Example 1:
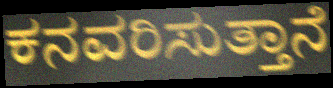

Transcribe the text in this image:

ಕನವರಿಸುತ್ತಾನೆ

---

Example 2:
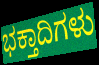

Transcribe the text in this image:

ಭಕ್ತಾದಿಗಳು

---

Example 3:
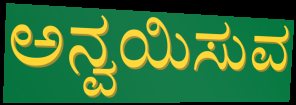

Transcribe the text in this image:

ಅನ್ವಯಿಸುವ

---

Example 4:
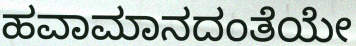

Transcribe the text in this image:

ಹವಾಮಾನದಂತೆಯೇ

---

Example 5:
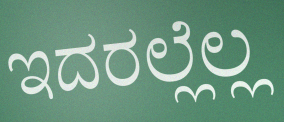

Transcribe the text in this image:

ಇದರಲ್ಲೆಲ್ಲ